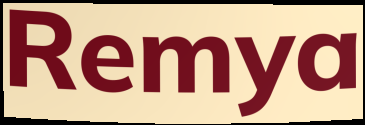
Remya